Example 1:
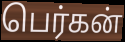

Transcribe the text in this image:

பெர்கன்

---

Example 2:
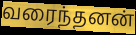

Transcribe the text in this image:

வரைந்தனன்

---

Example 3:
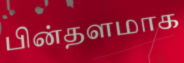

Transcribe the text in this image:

பின்தளமாக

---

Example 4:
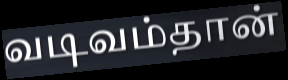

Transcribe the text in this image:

வடிவம்தான்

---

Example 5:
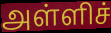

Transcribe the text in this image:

அள்ளிச்